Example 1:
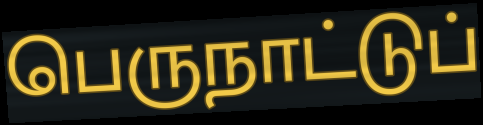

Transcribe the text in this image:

பெருநாட்டுப்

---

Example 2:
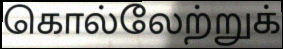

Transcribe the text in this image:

கொல்லேற்றுக்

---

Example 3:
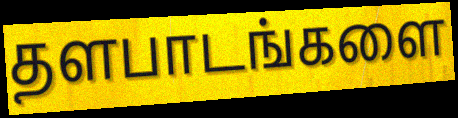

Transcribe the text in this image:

தளபாடங்களை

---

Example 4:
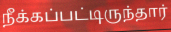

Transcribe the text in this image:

நீக்கப்பட்டிருந்தார்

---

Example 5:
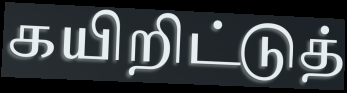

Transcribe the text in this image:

கயிறிட்டுத்